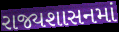
રાજ્યશાસનમાં